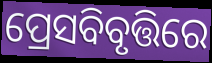
ପ୍ରେସବିବୃତ୍ତିରେ